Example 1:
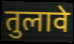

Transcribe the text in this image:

तुलावे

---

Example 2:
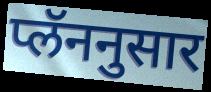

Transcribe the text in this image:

प्लॅननुसार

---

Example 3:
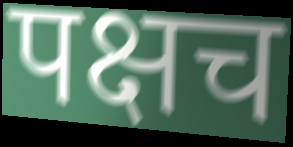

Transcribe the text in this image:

पक्षच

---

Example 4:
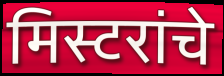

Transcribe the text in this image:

मिस्टरांचे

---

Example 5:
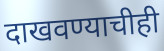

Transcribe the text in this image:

दाखवण्याचीही